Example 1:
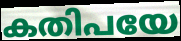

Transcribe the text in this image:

കതിപയേ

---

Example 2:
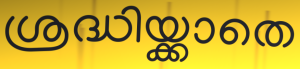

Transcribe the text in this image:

ശ്രദ്ധിയ്ക്കാതെ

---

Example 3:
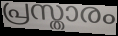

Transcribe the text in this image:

പ്രസ്താരം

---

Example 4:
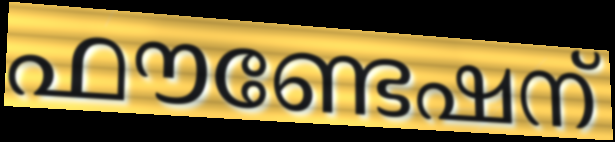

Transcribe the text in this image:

ഫൗണ്ടേഷന്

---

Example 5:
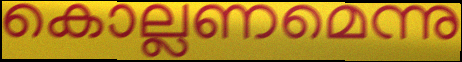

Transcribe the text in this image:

കൊല്ലണമെന്നു